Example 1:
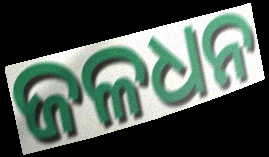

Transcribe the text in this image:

ଜଳଧନ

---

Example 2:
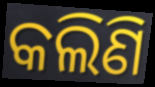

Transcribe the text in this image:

କଲିଣି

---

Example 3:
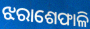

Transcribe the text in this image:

ଝରାଶେଫାଳି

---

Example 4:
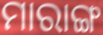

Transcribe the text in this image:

ମାରାଙ୍ଗ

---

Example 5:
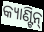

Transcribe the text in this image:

କ୍ୟାଣ୍ଟିନ୍